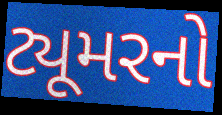
ટ્યૂમરનો